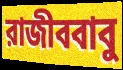
রাজীববাবু